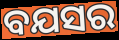
ବଯସର